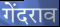
गेंदराव